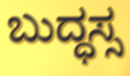
ಬುದ್ಧಸ್ಸ